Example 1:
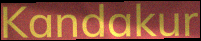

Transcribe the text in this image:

Kandakur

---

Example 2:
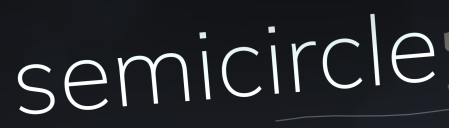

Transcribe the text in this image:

semicircle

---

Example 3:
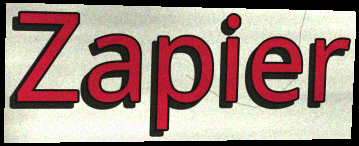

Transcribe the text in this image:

Zapier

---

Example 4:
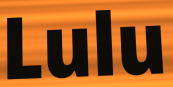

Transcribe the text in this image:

Lulu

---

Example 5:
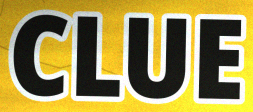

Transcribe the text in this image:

CLUE